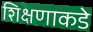
शिक्षणाकडे